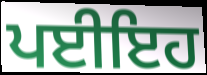
ਪਈਇਹ